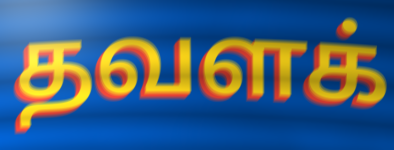
தவளக்